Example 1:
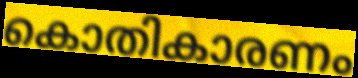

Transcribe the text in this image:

കൊതികാരണം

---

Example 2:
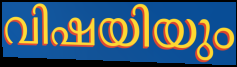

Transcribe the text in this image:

വിഷയിയും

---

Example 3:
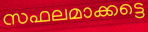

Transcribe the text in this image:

സഫലമാക്കട്ടെ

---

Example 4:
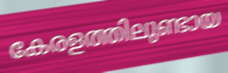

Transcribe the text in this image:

കേരളത്തിലുണ്ടായ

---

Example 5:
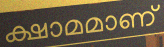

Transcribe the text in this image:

ക്ഷാമമാണ്